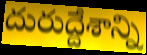
దురుద్దేశాన్ని